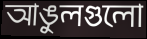
আঙুলগুলো